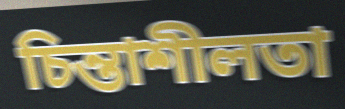
চিন্তাশীলতা